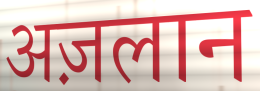
अज़लान